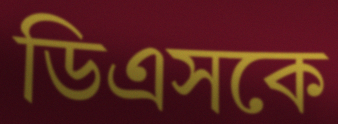
ডিএসকে